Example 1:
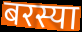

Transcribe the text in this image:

बरस्या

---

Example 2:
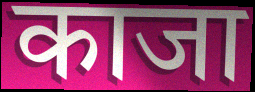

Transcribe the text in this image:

काजा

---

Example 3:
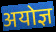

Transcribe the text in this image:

अयोज्ञ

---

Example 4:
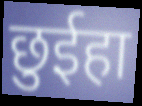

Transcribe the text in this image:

छुईहा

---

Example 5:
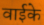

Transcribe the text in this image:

वाईके